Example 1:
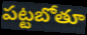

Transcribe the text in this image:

పట్టబోతూ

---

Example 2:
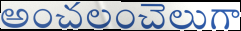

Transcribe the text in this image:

అంచలంచెలుగా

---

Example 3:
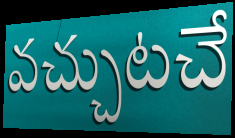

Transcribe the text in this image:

వచ్చుటచే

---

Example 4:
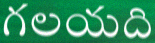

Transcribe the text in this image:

గలయది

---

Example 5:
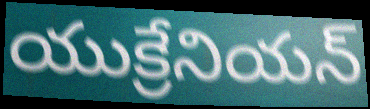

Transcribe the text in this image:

యుక్రేనియన్